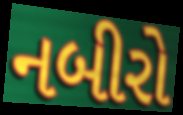
નબીરો